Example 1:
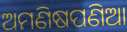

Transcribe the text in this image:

ଅମଣିଷପଣିଆ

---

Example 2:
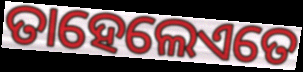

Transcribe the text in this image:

ତାହେଲେଏତେ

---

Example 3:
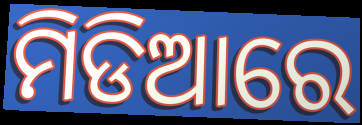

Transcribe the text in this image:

ମିଡିଆରେ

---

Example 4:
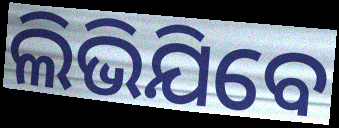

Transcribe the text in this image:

ଲିଭିଯିବେ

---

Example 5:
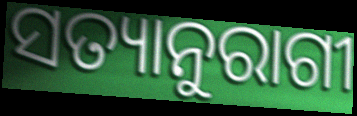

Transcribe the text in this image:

ସତ୍ୟାନୁରାଗୀ